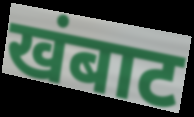
खंबाट